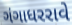
ગંગાધરરાવે